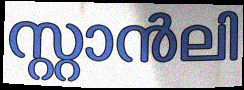
സ്റ്റാൻലി